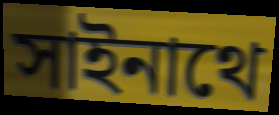
সাইনাথে